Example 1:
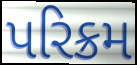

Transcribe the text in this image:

પરિક્રમ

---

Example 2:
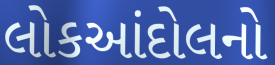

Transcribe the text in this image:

લોકઆંદોલનો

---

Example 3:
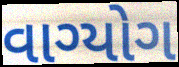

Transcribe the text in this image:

વાગ્યોગ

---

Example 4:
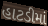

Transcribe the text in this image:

હાટડીમાં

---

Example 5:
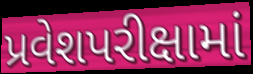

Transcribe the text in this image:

પ્રવેશપરીક્ષામાં